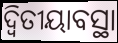
ଦ୍ବିତୀୟାବସ୍ଥା